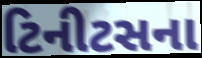
ટિનીટસના